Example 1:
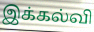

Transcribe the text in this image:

இக்கல்வி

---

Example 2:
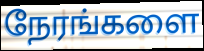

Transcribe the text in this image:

நேரங்களை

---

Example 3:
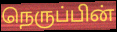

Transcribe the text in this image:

நெருப்பின்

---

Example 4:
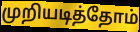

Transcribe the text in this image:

முறியடித்தோம்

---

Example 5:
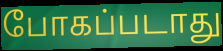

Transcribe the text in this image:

போகப்படாது